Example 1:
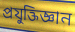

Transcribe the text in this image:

প্রযুক্তিজ্ঞান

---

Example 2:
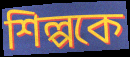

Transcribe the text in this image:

শিল্পকে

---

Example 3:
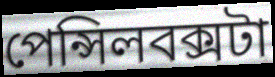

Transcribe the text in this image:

পেন্সিলবক্সটা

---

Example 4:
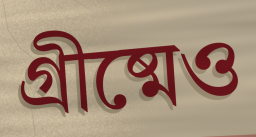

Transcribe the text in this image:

গ্রীষ্মেও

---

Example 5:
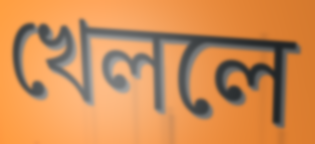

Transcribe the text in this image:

খেললে